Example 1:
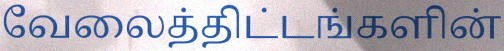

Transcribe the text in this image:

வேலைத்திட்டங்களின்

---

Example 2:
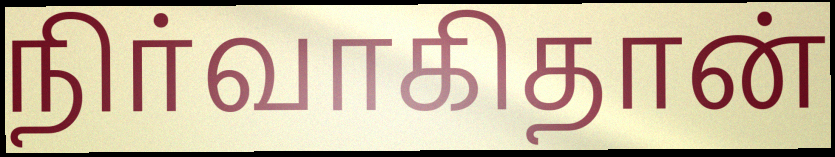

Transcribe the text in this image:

நிர்வாகிதான்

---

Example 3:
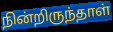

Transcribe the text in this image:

நின்றிருந்தாள்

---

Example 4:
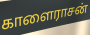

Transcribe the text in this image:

காளைராசன்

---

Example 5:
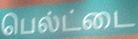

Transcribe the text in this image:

பெல்ட்டை